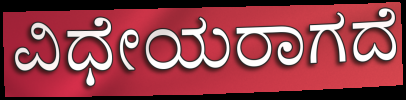
ವಿಧೇಯರಾಗದೆ